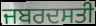
ਜਬਰਦਸਤੀ